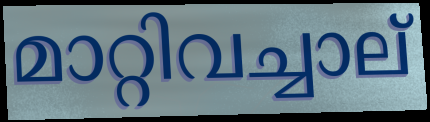
മാറ്റിവച്ചാല്